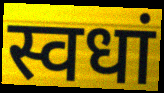
स्वधां